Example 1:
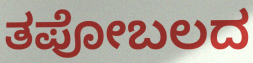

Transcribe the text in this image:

ತಪೋಬಲದ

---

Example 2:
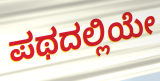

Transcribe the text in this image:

ಪಥದಲ್ಲಿಯೇ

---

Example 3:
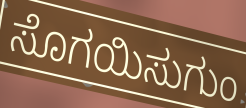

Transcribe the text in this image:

ಸೊಗಯಿಸುಗುಂ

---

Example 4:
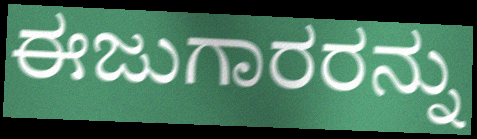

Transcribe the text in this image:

ಈಜುಗಾರರನ್ನು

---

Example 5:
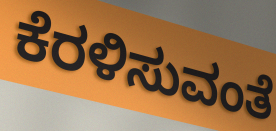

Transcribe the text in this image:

ಕೆರಳಿಸುವಂತೆ